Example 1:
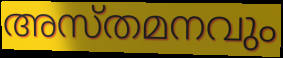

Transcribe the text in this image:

അസ്തമനവും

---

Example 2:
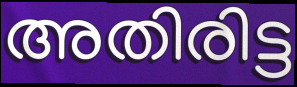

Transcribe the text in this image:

അതിരിട്ട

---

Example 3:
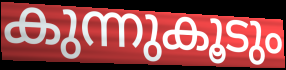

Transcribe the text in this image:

കുന്നുകൂടും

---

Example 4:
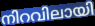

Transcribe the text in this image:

നിറവിലായി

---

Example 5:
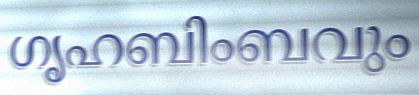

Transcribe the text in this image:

ഗൃഹബിംബവും